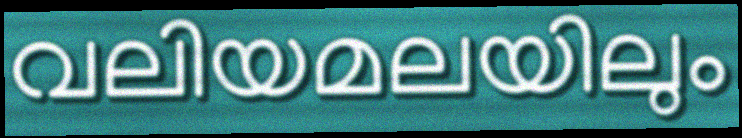
വലിയമലയിലും